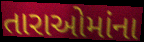
તારાઓમાંના